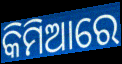
କିମିଆରେ